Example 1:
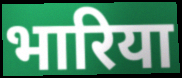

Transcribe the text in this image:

भारिया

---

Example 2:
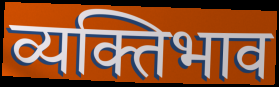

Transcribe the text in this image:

व्यक्तिभाव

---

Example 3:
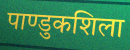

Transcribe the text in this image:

पाण्डुकशिला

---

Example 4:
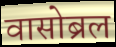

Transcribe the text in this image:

वासोब्रल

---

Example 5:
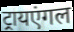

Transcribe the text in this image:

ट्रायएंगल